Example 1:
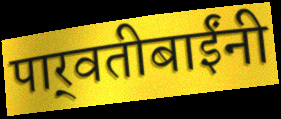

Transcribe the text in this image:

पार्वतीबाईंनी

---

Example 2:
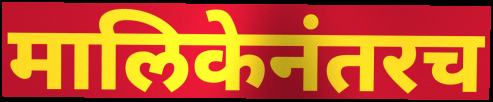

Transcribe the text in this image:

मालिकेनंतरच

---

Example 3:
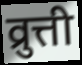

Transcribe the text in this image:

व्रुत्ती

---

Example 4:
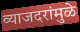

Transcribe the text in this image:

व्याजदरांमुळे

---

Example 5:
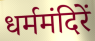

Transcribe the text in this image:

धर्ममंदिरें